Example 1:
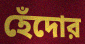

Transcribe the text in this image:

হেঁদোর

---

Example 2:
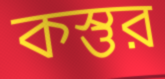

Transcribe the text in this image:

কস্তুর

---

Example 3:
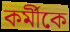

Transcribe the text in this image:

কর্মীকে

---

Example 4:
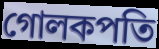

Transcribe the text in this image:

গোলকপতি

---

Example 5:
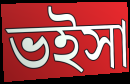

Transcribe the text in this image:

ভইসা